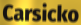
Carsicko